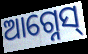
ଆଗ୍ନେସ୍